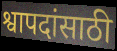
श्वापदांसाठी